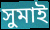
সুমাই